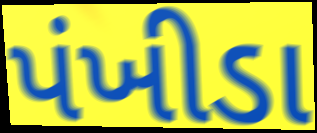
પંખીડા